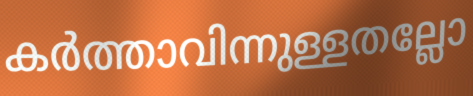
കർത്താവിന്നുള്ളതല്ലോ